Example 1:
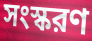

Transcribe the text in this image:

সংস্করণ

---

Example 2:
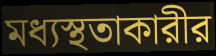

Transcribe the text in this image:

মধ্যস্থতাকারীর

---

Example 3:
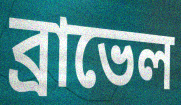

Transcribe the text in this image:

ব্রাভেল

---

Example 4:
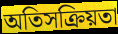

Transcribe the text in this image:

অতিসক্রিয়তা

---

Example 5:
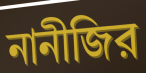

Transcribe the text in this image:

নানীজির